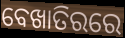
ବେଖାତିରରେ